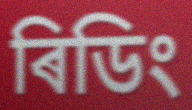
ৰিডিং